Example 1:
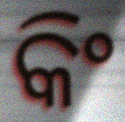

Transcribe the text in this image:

କିଂ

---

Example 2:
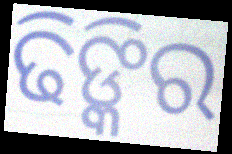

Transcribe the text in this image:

ଢିଙ୍କିର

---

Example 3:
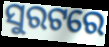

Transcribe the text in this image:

ସୁରଟରେ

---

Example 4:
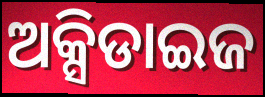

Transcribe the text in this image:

ଅକ୍ସିଡାଇଜ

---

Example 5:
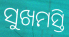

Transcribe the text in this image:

ସୁଖମସ୍ତି